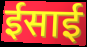
ईसाई